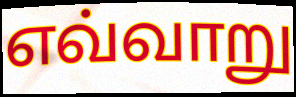
எவ்வாறு